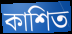
কাশিত